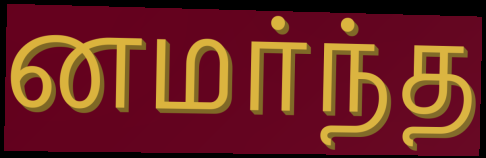
னமர்ந்த